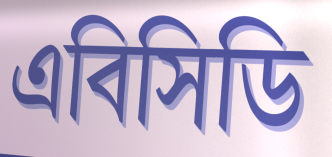
এবিসিডি